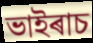
ভাইৰাচ